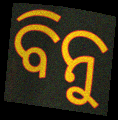
ବିନୁ